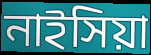
নাইসিয়া